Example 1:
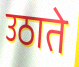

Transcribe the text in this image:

उठाते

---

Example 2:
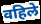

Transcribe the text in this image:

वहिले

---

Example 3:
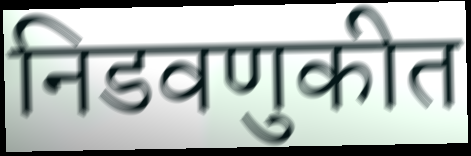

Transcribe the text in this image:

निडवणुकीत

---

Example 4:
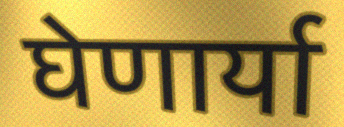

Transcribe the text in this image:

घेणार्या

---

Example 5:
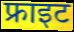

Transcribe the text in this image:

फ्राइट